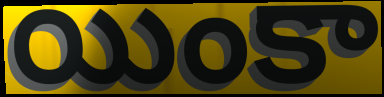
యింకా